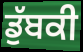
ਡੁੱਬਕੀ